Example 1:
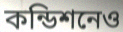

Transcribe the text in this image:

কন্ডিশনেও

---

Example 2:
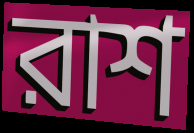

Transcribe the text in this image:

রাশ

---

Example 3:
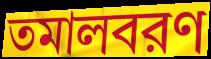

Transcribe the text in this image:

তমালবরণ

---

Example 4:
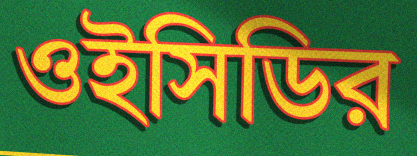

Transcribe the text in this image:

ওইসিডির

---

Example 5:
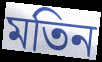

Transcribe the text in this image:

মতিন